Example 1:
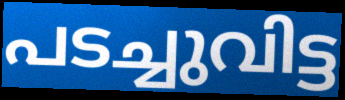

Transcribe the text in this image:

പടച്ചുവിട്ട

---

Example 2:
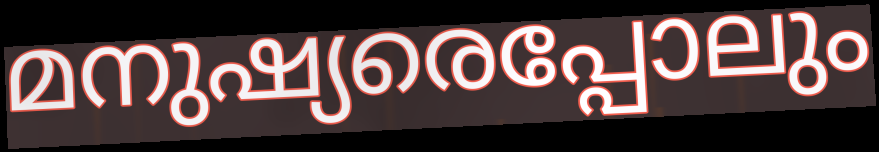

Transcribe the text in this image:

മനുഷ്യരെപ്പോലും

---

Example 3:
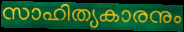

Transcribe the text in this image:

സാഹിത്യകാരനും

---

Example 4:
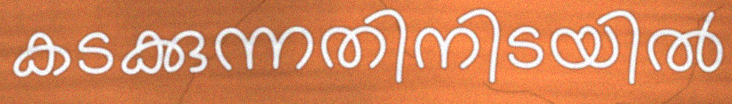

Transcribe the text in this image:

കടക്കുന്നതിനിടയിൽ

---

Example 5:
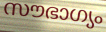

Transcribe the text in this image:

സൗഭാഗ്യം